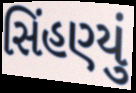
સિંહણ્યું